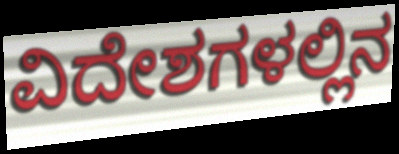
ವಿದೇಶಗಳಲ್ಲಿನ